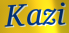
Kazi